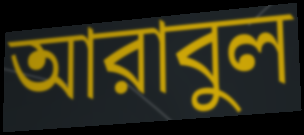
আরাবুল